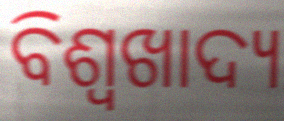
ବିଶ୍ୱଖାଦ୍ୟ